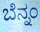
ಬೆನ್ನಂ